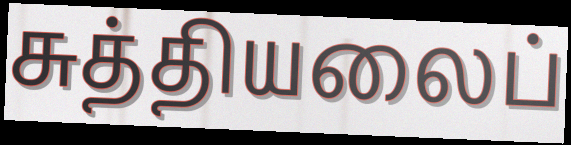
சுத்தியலைப்